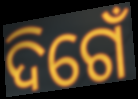
ଦିଗେଁ